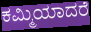
ಕಮ್ಮಿಯಾದರೆ